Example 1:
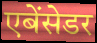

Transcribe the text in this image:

एबेंसेडर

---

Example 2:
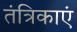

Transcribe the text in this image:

तंत्रिकाएं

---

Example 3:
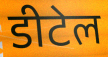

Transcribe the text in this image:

डीटेल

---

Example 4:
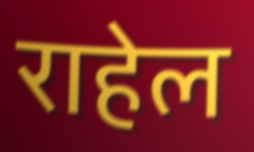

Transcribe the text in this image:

राहेल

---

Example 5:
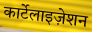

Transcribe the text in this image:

कार्टेलाइज़ेशन